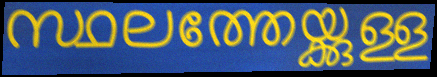
സ്ഥലത്തേയ്ക്കുള്ള